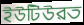
ইউটিউৱত